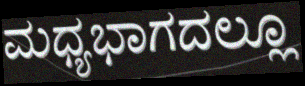
ಮಧ್ಯಭಾಗದಲ್ಲೂ